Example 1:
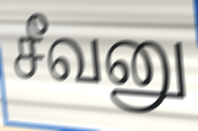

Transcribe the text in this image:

சீவனு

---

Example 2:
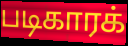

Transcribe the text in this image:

படிகாரக்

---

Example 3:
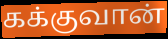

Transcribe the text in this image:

கக்குவான்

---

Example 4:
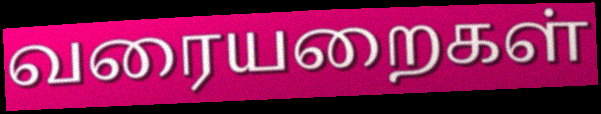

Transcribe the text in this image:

வரையறைகள்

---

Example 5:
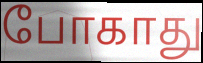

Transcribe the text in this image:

போகாது